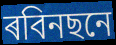
ৰবিনছনে